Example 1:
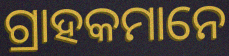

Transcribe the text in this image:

ଗ୍ରାହକମାନେ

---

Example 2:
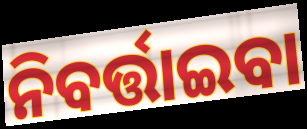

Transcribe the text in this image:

ନିବର୍ତ୍ତାଇବା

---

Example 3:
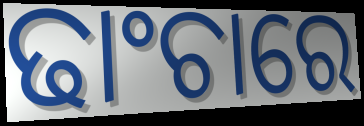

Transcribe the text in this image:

ଢାଂଚାରେ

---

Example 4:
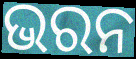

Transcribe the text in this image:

ଭରନ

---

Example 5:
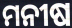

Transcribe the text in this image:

ମନୀଷ